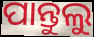
ପାନ୍ତୁଲୁ